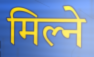
मिल्ने